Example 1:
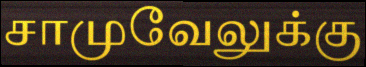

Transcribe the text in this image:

சாமுவேலுக்கு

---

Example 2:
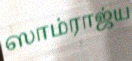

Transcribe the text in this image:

ஸாம்ராஜ்ய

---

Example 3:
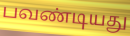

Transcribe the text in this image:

பவண்டியது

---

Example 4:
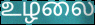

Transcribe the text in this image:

உழலை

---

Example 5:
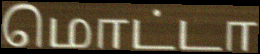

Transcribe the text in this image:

மொட்டா